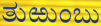
ತುಱುಂಬು